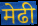
मेढी